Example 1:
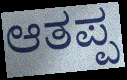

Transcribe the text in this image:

ಆತಪ್ಪ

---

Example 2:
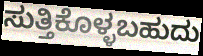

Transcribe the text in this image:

ಸುತ್ತಿಕೊಳ್ಳಬಹುದು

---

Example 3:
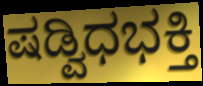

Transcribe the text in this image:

ಷಡ್ವಿಧಭಕ್ತಿ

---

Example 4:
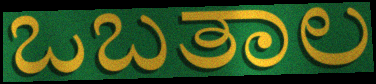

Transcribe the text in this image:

ಒಬತಾಲ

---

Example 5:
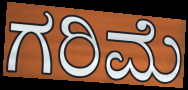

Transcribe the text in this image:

ಗರಿಮೆ